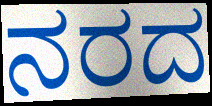
ನರದ